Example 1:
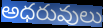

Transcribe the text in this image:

అధరువులు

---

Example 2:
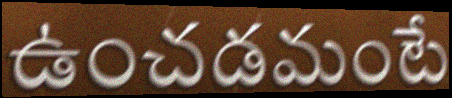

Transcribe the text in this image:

ఉంచడమంటే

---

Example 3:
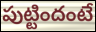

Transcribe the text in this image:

పుట్టిందంటే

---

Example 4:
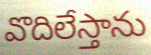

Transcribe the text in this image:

వొదిలేస్తాను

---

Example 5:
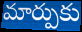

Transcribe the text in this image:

మార్పుకు